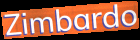
Zimbardo